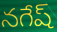
నగేష్